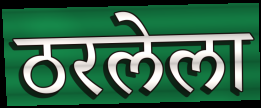
ठरलेला